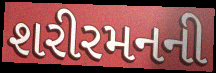
શરીરમનની